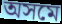
অসমে